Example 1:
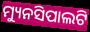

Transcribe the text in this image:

ମ୍ୟୁନସିପାଲଟି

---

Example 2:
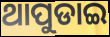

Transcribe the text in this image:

ଥାପୁଡାଇ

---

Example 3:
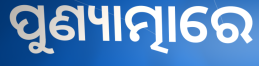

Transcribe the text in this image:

ପୁଣ୍ୟାତ୍ମାରେ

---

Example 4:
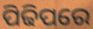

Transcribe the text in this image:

ପିଢିପରେ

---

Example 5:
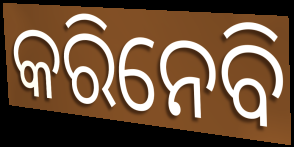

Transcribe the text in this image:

କରିନେବି